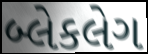
બ્લેકલેગ